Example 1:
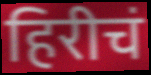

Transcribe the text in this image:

हिरीचं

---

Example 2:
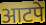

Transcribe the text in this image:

आटपे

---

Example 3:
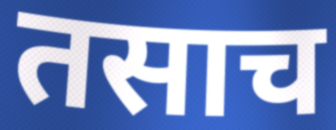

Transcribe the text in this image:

तसाच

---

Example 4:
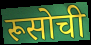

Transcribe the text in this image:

रूसोची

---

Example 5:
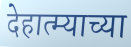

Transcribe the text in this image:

देहात्म्याच्या